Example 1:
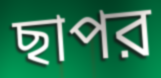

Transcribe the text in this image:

ছাপর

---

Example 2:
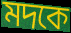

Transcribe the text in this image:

মদকে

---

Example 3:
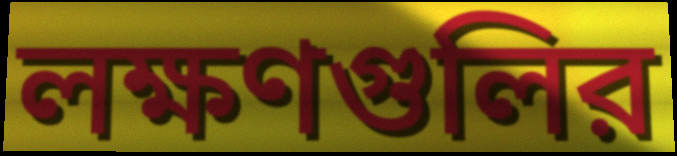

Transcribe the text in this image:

লক্ষণগুলির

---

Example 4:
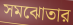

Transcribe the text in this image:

সমঝোতার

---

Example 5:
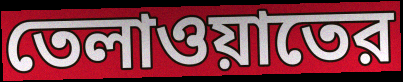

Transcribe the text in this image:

তেলাওয়াতের